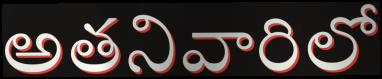
అతనివారిలో